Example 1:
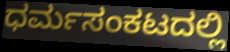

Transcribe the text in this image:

ಧರ್ಮಸಂಕಟದಲ್ಲಿ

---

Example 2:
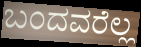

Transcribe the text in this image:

ಬಂದವರೆಲ್ಲ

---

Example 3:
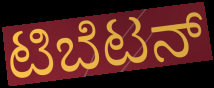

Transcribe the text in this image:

ಟಿಬೆಟನ್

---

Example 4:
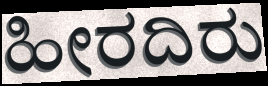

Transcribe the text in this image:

ಹೀರದಿರು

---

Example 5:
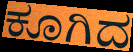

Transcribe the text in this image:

ಕೂಗಿದ